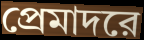
প্রেমাদরে